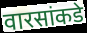
वारसांकडे